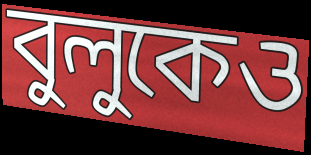
বুলুকেও